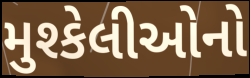
મુશ્કેલીઓનો